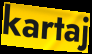
kartaj